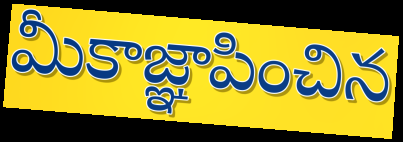
మీకాజ్ఞాపించిన